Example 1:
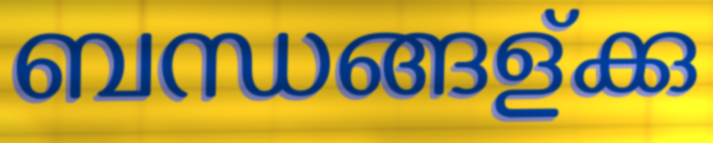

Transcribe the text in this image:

ബന്ധങ്ങള്ക്കു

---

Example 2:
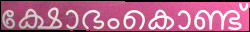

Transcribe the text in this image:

ക്ഷോഭംകൊണ്ട്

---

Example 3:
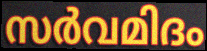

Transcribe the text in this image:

സർവമിദം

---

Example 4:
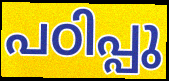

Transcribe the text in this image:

പഠിപ്പു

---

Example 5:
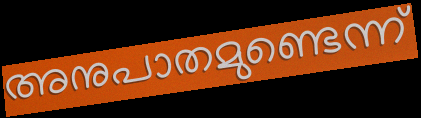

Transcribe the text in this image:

അനുപാതമുണ്ടെന്ന്